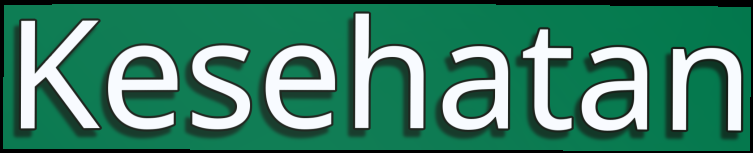
Kesehatan